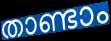
താണ്ടാം